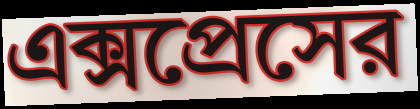
এক্সপ্রেসের